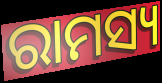
ରାମସ୍ୟ